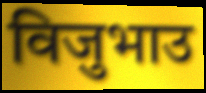
विजुभाउ